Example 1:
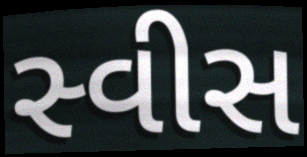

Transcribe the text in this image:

સ્વીસ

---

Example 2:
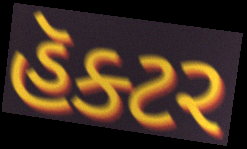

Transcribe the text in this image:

હૅક્ટર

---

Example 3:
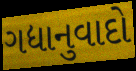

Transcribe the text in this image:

ગદ્યાનુવાદો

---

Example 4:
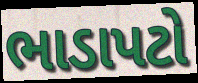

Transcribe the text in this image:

ભાડાપટો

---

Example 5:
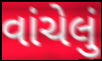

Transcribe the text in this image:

વાંચેલું